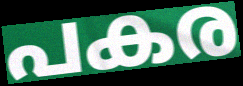
പകര